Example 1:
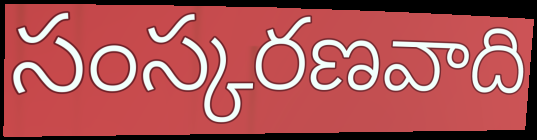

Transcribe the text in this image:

సంస్కరణవాది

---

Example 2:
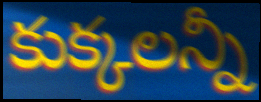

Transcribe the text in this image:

కుక్కలన్నీ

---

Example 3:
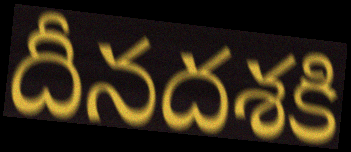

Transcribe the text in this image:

దీనదశకి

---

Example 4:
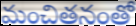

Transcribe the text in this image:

మంచితనంతో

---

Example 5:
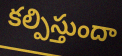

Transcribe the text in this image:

కల్పిస్తుందా